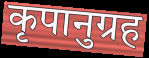
कृपानुग्रह